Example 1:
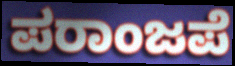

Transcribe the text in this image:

ಪರಾಂಜಪೆ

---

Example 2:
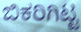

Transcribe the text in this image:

ಬಿಕರಿಗಿಟ್ಟ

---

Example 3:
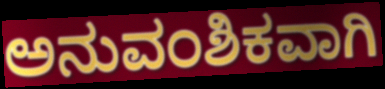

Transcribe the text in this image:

ಅನುವಂಶಿಕವಾಗಿ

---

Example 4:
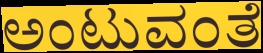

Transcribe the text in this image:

ಅಂಟುವಂತೆ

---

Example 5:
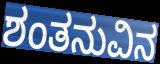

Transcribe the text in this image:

ಶಂತನುವಿನ